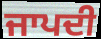
ਜਾਪਦੀ